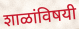
शाळांविषयी